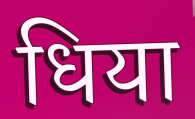
धिया